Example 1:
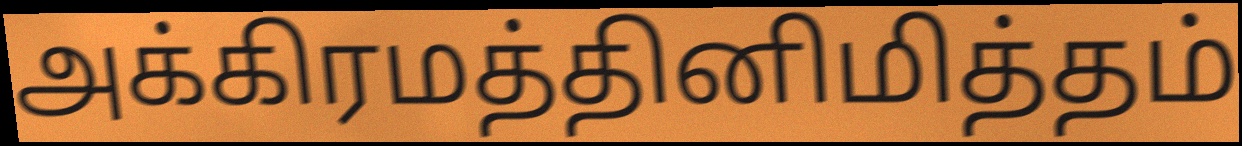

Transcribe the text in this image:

அக்கிரமத்தினிமித்தம்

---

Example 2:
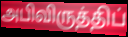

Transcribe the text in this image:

அபிவிருத்திப்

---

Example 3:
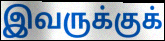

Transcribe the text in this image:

இவருக்குக்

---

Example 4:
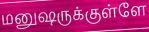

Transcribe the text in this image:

மனுஷருக்குள்ளே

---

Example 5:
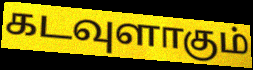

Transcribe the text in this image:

கடவுளாகும்